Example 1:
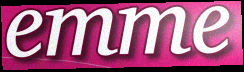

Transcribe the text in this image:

emme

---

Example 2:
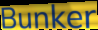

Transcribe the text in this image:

Bunker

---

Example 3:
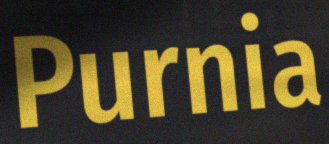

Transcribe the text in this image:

Purnia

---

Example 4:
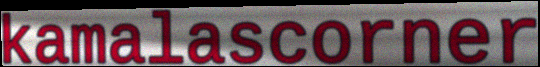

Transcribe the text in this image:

kamalascorner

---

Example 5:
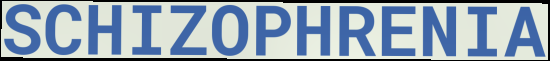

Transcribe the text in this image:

SCHIZOPHRENIA